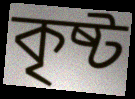
কৃষ্ট